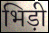
भिड़ी